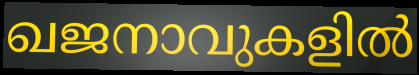
ഖജനാവുകളിൽ